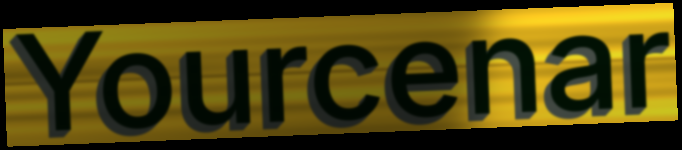
Yourcenar